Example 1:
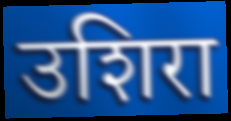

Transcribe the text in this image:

उशिरा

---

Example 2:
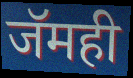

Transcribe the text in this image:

जॅमही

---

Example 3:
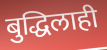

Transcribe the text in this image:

बुद्धिलाही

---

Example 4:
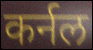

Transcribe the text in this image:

कर्नल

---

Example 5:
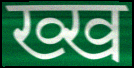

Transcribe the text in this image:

ख्ख